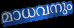
മാധവനും